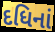
દધિનાં